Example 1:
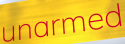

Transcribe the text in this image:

unarmed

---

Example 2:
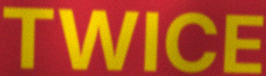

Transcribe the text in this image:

TWICE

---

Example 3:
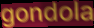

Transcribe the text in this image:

gondola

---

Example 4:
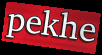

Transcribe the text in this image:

pekhe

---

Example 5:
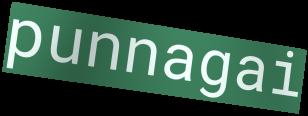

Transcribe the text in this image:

punnagai